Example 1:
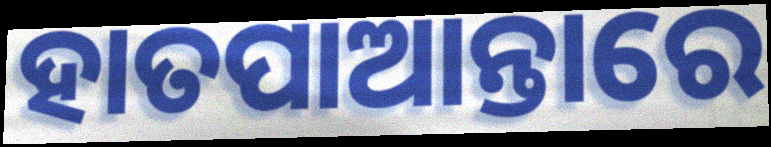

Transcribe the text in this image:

ହାତପାଆନ୍ତାରେ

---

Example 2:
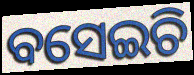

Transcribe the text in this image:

ବସେଇଚି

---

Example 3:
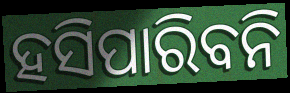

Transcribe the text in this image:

ହସିପାରିବନି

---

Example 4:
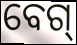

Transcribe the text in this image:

ବେଗ୍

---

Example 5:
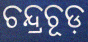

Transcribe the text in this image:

ଚନ୍ଦ୍ରଚୂଡ଼